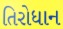
તિરોધાન